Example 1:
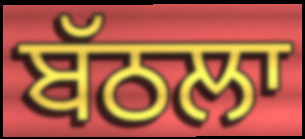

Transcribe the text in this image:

ਬੱਠਲਾ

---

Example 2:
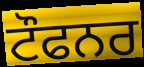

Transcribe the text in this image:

ਟੌਫਨਰ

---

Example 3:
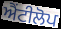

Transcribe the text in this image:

ਐਂਟੀਲੋਪ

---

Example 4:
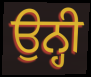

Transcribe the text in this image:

ਉਨ੍ਹੀ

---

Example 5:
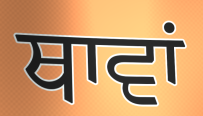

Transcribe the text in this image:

ਥਾਵਾਂ